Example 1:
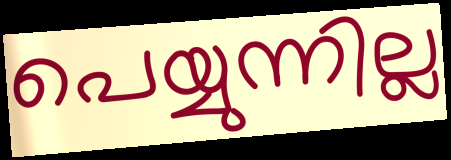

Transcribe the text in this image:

പെയ്യുന്നില്ല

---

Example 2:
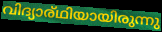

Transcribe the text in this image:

വിദ്യാര്ഥിയായിരുന്നു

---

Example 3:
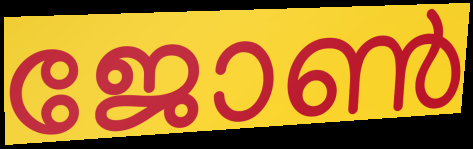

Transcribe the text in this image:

ജോൺ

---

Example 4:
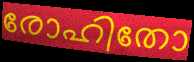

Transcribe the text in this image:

രോഹിതോ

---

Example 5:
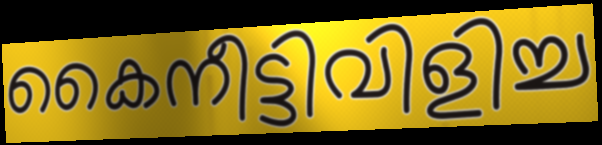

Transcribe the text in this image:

കൈനീട്ടിവിളിച്ച